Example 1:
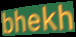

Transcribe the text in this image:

bhekh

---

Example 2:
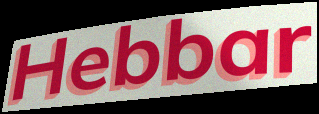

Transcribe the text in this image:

Hebbar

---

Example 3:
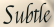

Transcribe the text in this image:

Subtle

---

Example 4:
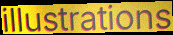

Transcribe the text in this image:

illustrations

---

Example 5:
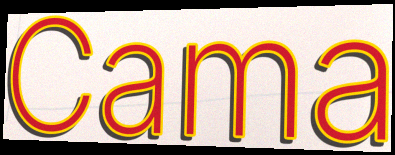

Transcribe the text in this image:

Cama